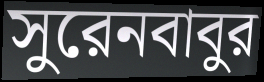
সুরেনবাবুর